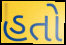
હતો